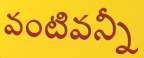
వంటివన్నీ